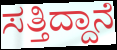
ಸತ್ತಿದ್ದಾನೆ